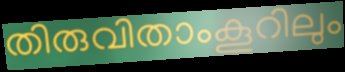
തിരുവിതാംകൂറിലും